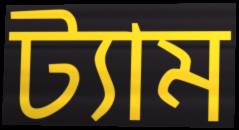
ট্যাম